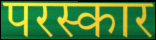
परस्कार